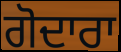
ਗੋਦਾਰਾ